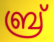
ബ്ര്